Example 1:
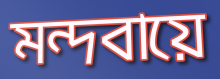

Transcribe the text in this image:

মন্দবায়ে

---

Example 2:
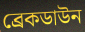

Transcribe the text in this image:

ব্রেকডাউন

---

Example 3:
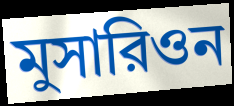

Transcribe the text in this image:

মুসারিওন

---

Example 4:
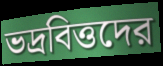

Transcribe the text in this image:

ভদ্রবিত্তদের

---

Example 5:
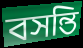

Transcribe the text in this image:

বসন্তি